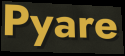
Pyare